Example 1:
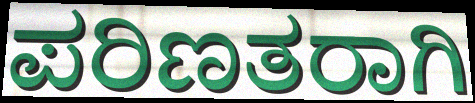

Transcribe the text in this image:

ಪರಿಣತರಾಗಿ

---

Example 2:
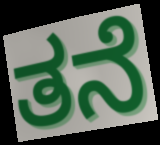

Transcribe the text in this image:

ತನೆ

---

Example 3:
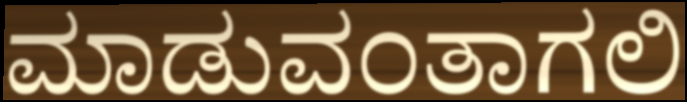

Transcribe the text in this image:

ಮಾಡುವಂತಾಗಲಿ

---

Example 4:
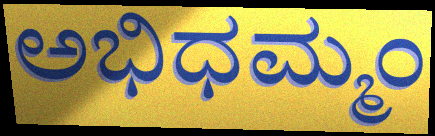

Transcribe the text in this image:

ಅಭಿಧಮ್ಮಂ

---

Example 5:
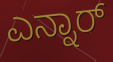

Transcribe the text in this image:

ಎನ್ನಾರ್